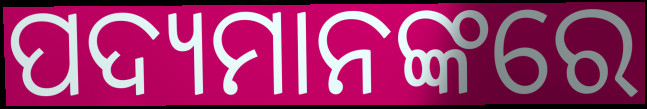
ପଦ୍ୟମାନଙ୍କରେ